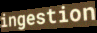
ingestion